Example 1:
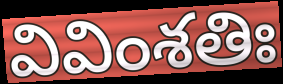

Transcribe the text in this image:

వివింశతిః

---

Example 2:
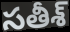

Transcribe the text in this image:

సతీశ్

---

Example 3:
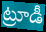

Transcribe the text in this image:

ట్రూడీ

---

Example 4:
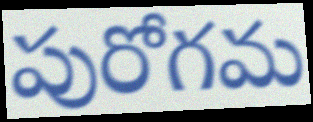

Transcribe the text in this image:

పురోగమ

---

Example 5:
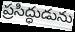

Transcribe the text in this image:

ప్రసిద్ధుడును